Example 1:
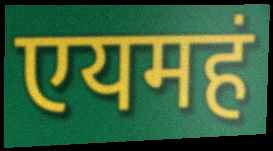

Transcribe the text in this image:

एयमहं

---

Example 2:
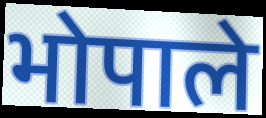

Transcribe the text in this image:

भोपाले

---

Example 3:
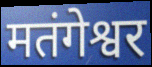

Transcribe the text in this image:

मतंगेश्वर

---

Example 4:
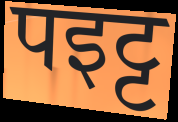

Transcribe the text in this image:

पइट्ट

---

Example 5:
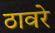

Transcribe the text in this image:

ठावरे